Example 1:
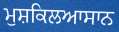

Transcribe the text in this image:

ਮੁਸ਼ਕਿਲਆਸਾਨ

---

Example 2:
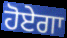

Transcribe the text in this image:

ਹੋਏਗਾ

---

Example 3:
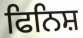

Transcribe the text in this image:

ਫਿਨਿਸ਼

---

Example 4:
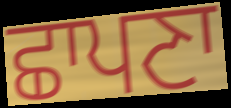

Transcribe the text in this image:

ਛਾਪਣਾ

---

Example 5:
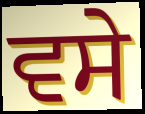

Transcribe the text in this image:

ਵਸੇ